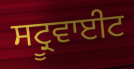
ਸਟ੍ਰੂਵਾਈਟ